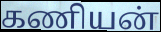
கணியன்